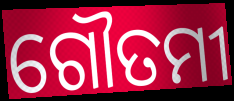
ଗୌତମୀ